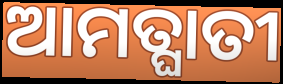
ଆମତ୍ଘାତୀ